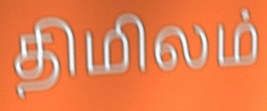
திமிலம்